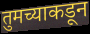
तुमच्याकडून